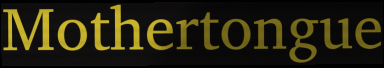
Mothertongue